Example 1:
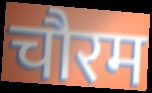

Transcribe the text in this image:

चौरम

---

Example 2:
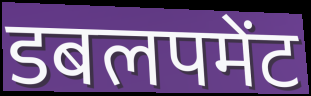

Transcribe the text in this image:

डबलपमेंट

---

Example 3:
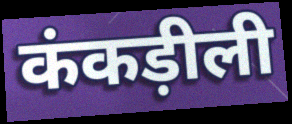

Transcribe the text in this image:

कंकड़ीली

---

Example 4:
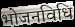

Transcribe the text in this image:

भोजनविधि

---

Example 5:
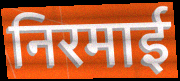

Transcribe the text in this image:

निरमाई